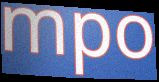
mpo